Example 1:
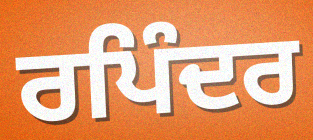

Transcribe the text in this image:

ਰਪਿੰਦਰ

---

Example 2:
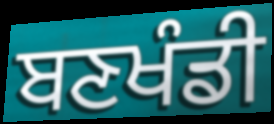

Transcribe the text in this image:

ਬਣਖੰਡੀ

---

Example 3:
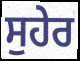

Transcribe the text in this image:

ਸੁਹੇਰ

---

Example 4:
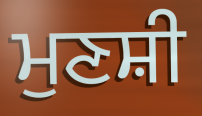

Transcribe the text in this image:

ਮੁਣਸ਼ੀ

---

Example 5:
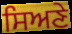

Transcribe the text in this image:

ਸਿਅਣੇ